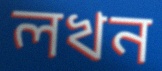
লখন